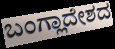
ಬಂಗ್ಲಾದೇಶದ